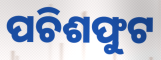
ପଚିଶଫୁଟ